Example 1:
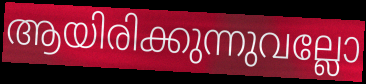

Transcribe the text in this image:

ആയിരിക്കുന്നുവല്ലോ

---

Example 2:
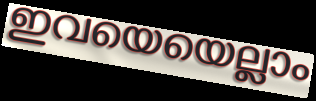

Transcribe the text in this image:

ഇവയെയെല്ലാം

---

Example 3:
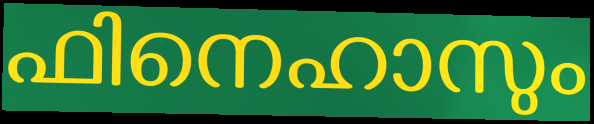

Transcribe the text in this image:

ഫിനെഹാസും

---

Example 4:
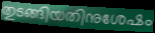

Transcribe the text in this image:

തുടങ്ങിയതിനുശേഷം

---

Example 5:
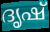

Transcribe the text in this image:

ദൃഷ്